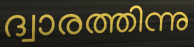
ദ്വാരത്തിന്നു